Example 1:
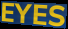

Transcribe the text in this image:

EYES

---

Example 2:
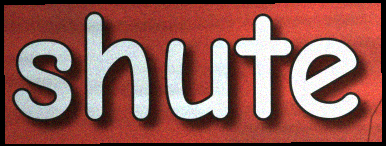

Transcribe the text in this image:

shute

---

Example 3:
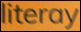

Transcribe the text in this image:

literay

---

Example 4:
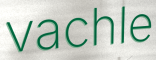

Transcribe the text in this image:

vachle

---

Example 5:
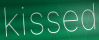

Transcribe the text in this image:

kissed